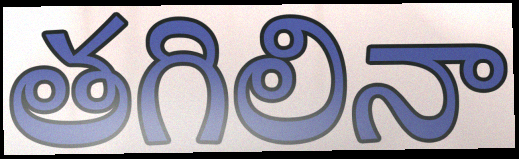
తగిలినా